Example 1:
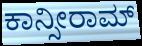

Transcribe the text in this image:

ಕಾನ್ಸೀರಾಮ್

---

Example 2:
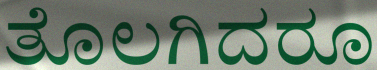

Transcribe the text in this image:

ತೊಲಗಿದರೂ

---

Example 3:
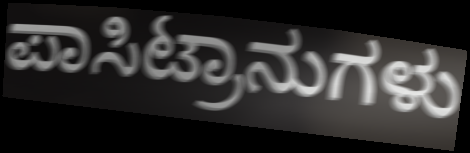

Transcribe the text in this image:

ಪಾಸಿಟ್ರಾನುಗಳು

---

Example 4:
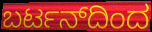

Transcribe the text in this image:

ಬರ್ಟನ್‌ದಿಂದ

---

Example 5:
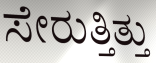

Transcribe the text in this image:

ಸೇರುತ್ತಿತ್ತು